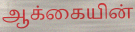
ஆக்கையின்